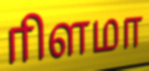
ரிளமா